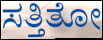
ಸತ್ತಿತೋ